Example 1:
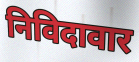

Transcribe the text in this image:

निविदावार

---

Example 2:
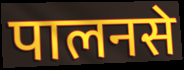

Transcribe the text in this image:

पालनसे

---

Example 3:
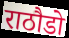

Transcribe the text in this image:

राठौडो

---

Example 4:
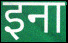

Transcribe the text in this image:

इना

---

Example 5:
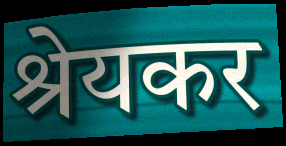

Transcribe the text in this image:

श्रेयकर